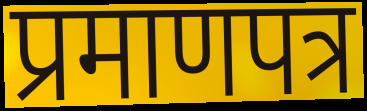
प्रमाणपत्र